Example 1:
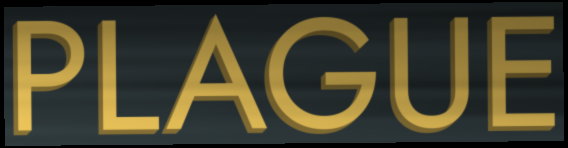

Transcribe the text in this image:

PLAGUE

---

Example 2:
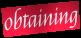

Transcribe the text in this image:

obtaining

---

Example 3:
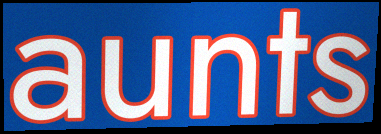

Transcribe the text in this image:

aunts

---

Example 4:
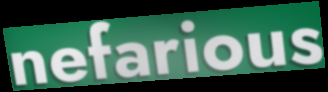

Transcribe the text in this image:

nefarious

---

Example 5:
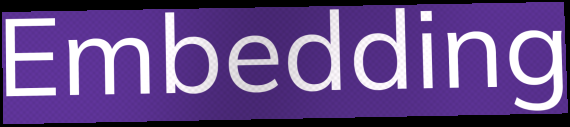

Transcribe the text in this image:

Embedding